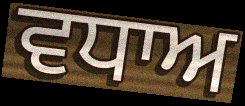
ਵਧਾਅ